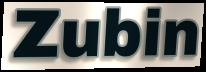
Zubin